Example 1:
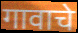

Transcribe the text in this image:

गावाचे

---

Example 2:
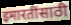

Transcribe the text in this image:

इमारतींसाठी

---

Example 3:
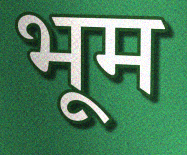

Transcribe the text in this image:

भूम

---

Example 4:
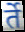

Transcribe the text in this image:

र्ते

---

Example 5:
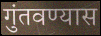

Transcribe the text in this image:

गुंतवण्यास